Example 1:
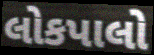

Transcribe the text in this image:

લોકપાલો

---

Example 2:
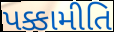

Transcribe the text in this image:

પક્કામીતિ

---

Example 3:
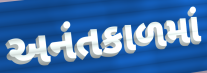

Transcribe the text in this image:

અનંતકાળમાં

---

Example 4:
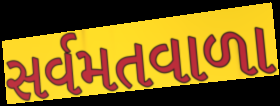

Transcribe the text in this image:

સર્વમતવાળા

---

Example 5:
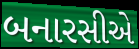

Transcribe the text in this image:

બનારસીએ